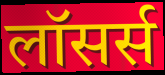
लॉसर्स